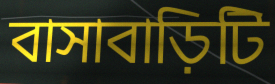
বাসাবাড়িটি